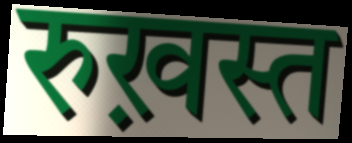
रुख़स्त